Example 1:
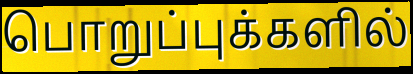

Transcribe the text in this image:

பொறுப்புக்களில்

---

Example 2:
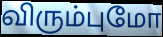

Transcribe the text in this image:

விரும்புமோ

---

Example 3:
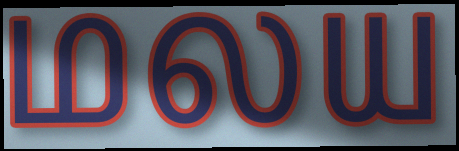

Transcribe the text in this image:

மலய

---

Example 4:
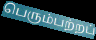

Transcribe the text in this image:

பெரும்பற்றப்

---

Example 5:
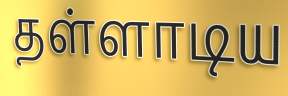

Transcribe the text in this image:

தள்ளாடிய